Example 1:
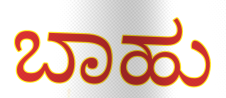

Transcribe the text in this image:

ಬಾಹು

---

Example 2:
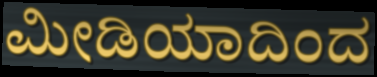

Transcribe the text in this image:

ಮೀಡಿಯಾದಿಂದ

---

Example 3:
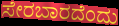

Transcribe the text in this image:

ಸೇರಬಾರದೆಂದು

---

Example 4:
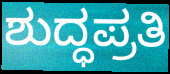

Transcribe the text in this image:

ಶುದ್ಧಪ್ರತಿ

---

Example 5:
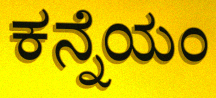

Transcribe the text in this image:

ಕನ್ನೆಯಂ